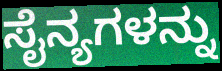
ಸೈನ್ಯಗಳನ್ನು